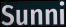
Sunni